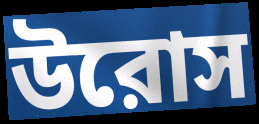
উরোস